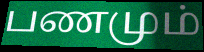
பணமும்